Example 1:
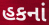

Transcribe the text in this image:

હકનાં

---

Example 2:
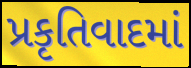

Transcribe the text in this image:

પ્રકૃતિવાદમાં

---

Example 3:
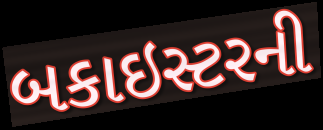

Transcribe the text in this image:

બકાઇસ્ટરની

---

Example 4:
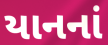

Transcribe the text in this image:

યાનનાં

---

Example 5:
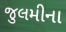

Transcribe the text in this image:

જુલમીના